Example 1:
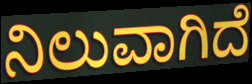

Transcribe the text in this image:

ನಿಲುವಾಗಿದೆ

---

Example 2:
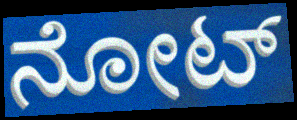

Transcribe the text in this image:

ನೋಟ್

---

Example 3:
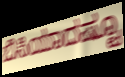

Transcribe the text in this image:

ಬಿಸಿಯಾದಷ್ಟೂ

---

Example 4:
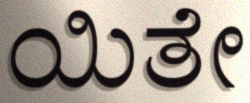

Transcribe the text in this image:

ಯಿತೇ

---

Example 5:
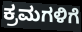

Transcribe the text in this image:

ಕ್ರಮಗಳಿಗೆ